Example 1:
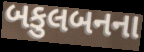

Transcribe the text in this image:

બકુલબનના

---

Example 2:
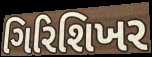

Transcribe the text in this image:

ગિરિશિખર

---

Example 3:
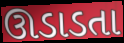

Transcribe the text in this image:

ઊડાડતા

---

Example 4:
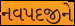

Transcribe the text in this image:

નવપદજીને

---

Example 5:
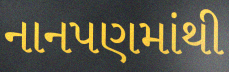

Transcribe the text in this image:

નાનપણમાંથી